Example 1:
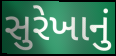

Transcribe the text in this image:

સુરેખાનું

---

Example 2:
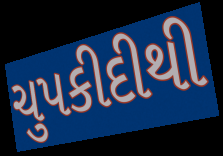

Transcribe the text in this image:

ચુપકીદીથી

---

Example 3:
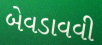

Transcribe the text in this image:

બેવડાવવી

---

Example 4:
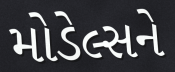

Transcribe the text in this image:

મોડેલ્સને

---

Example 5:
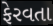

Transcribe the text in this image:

ફેરવતા